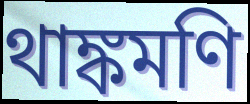
থাঙ্কমণি